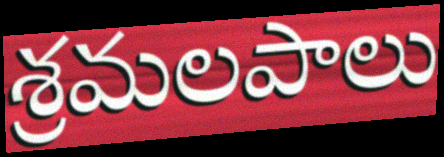
శ్రమలపాలు